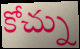
కోచ్ను